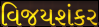
વિજયશંકર